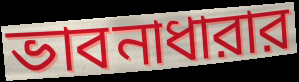
ভাবনাধারার